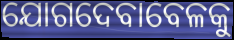
ଯୋଗଦେବାବେଳକୁ